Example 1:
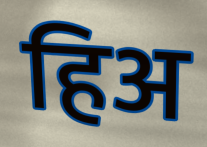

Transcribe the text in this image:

हिअ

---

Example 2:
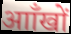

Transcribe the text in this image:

आाँखों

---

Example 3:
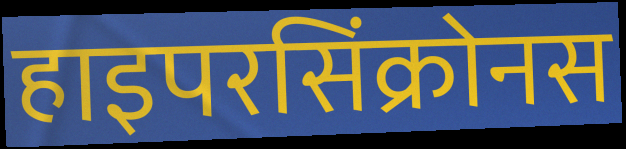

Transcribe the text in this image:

हाइपरसिंक्रोनस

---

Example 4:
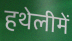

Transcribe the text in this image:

हथेलीमें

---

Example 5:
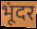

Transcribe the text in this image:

भूंदर